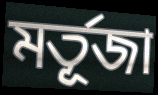
মর্তূজা